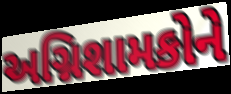
અગ્નિશામકોને